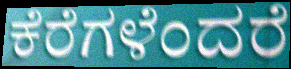
ಕೆರೆಗಳೆಂದರೆ